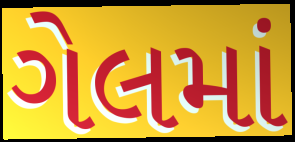
ગેલમાં